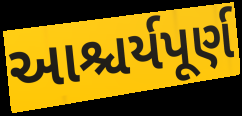
આશ્ચર્યપૂર્ણ